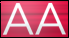
AA